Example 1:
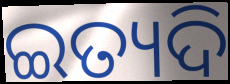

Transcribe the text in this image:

ଇତ୍ୟଦି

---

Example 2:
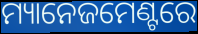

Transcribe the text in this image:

ମ୍ୟାନେଜମେଣ୍ଟରେ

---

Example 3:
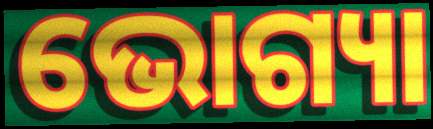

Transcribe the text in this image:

ଭୋଗ୍ୟା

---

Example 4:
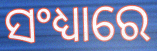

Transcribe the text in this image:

ସଂଧ୍ଯାରେ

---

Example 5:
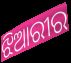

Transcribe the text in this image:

ଝିଆରୀର